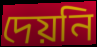
দেয়নি